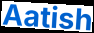
Aatish